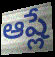
ఆష్లే